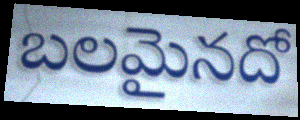
బలమైనదో